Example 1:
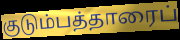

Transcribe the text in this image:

குடும்பத்தாரைப்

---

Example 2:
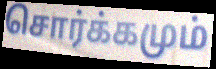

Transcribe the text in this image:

சொர்க்கமும்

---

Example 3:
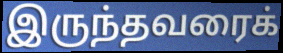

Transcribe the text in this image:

இருந்தவரைக்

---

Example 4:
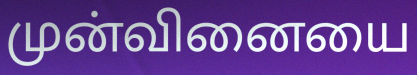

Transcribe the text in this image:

முன்வினையை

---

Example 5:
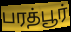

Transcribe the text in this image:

பரத்பூர்